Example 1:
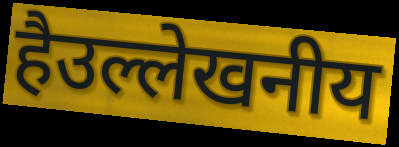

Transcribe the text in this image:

हैउल्लेखनीय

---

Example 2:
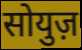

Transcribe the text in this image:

सोयुज़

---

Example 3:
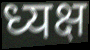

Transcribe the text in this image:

ध्यक्ष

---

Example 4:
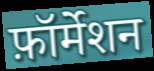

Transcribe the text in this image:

फ़ॉर्मेशन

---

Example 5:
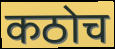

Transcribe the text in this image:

कठोच